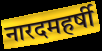
नारदमहर्षी